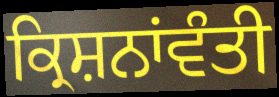
ਕ੍ਰਿਸ਼ਨਾਂਵੰਤੀ